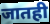
जातही